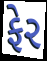
ફેર